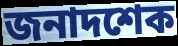
জনাদশেক